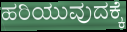
ಹರಿಯುವುದಕ್ಕೆ